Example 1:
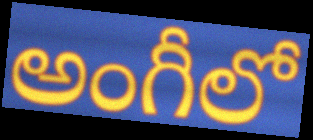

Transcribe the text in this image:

అంగీలో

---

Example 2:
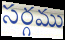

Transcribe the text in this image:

సర్గము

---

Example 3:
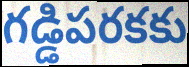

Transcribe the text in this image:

గడ్డిపరకకు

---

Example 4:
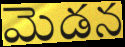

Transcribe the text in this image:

మెడన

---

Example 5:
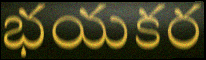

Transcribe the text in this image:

భయకర